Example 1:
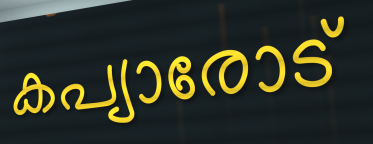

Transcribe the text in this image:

കപ്യാരോട്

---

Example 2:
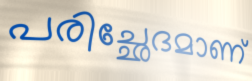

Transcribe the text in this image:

പരിച്ഛേദമാണ്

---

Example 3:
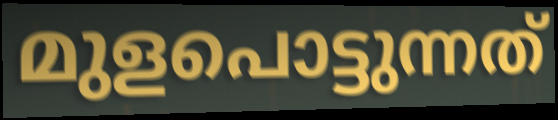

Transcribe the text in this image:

മുളപൊട്ടുന്നത്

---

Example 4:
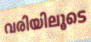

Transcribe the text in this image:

വരിയിലൂടെ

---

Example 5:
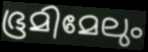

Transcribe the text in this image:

ഭൂമിമേലും